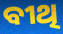
ବୀଥି